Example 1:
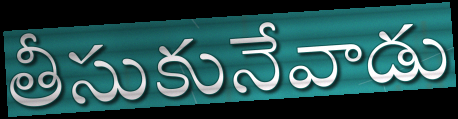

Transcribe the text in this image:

తీసుకునేవాడు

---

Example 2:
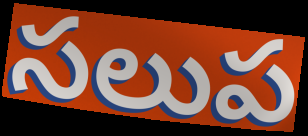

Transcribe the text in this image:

సలుప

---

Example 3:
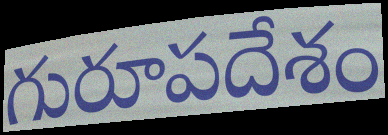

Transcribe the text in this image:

గురూపదేశం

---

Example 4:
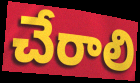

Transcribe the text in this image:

చేరాలి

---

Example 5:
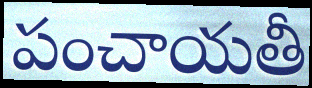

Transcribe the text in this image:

పంచాయతీ